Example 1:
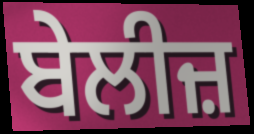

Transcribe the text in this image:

ਬੇਲੀਜ਼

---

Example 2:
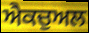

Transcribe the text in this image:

ਐਕਚੁਅਲ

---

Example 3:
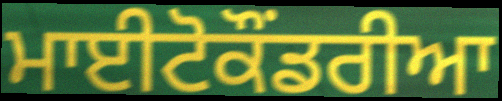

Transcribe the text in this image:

ਮਾਈਟੋਕੌਂਡਰੀਆ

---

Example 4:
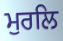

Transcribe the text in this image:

ਮੁਰਲਿ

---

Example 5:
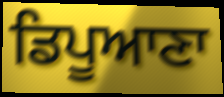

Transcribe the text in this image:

ਡਿਪੂਆਣਾ